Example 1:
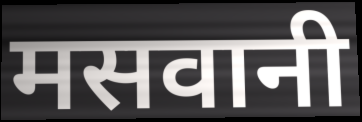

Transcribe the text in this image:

मसवानी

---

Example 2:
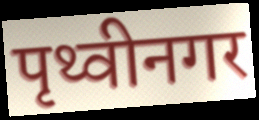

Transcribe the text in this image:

पृथ्वीनगर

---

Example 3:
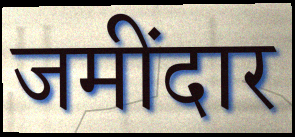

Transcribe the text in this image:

जमींदार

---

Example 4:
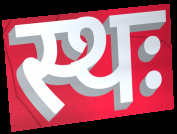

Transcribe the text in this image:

स्थः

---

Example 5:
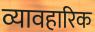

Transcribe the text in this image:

व्‍यावहारिक